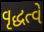
વૃદ્ધત્વે